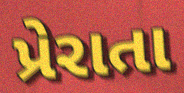
પ્રેરાતા